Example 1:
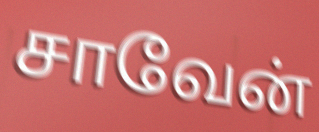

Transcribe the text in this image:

சாவேன்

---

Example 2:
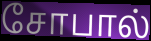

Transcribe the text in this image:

சோபால்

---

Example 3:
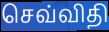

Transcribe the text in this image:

செவ்விதி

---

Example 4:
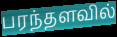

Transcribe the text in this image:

பரந்தளவில்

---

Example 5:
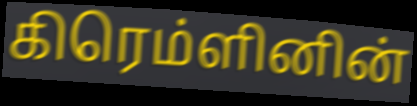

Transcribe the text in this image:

கிரெம்ளினின்